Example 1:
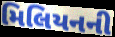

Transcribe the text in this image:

મિલિયનની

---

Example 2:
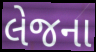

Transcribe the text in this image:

લેજના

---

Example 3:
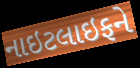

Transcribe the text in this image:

નાઇટલાઇફને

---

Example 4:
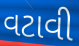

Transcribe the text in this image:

વટાવી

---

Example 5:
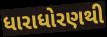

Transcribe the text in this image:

ધારાધોરણથી